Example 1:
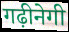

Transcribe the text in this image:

गढ़ीनेगी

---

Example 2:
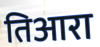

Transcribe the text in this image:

तिआरा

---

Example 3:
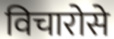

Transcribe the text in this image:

विचारोसे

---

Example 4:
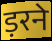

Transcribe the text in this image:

ड़रने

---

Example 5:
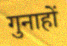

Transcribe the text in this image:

गुनाहों